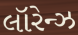
લૉરેન્ઝ